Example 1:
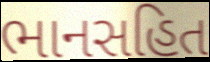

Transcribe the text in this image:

ભાનસહિત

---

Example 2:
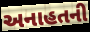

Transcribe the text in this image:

અનાહતની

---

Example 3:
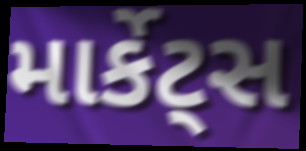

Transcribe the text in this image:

માર્કેટ્સ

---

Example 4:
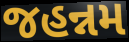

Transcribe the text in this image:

જહન્નમ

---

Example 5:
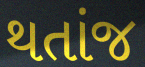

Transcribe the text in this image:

થતાંજ